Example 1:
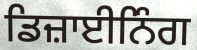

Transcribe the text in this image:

ਡਿਜ਼ਾਈਨਿੰਗ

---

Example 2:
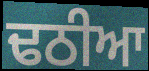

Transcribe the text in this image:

ਢਠੀਆ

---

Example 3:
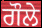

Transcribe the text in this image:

ਗੌਲੇ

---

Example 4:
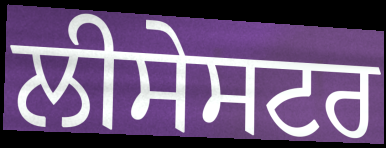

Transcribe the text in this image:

ਲੀਸੇਸਟਰ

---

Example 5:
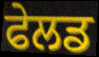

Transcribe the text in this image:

ਫੇਲਡ